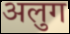
अलुग